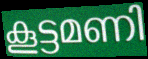
കൂട്ടമണി